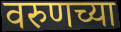
वरुणच्या